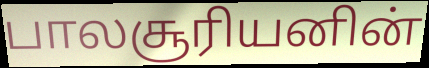
பாலசூரியனின்